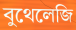
বুথেলেজি